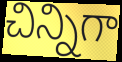
చిన్నిగా